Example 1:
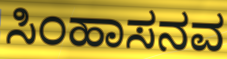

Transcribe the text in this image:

ಸಿಂಹಾಸನವ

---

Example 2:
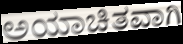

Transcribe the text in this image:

ಅಯಾಚಿತವಾಗಿ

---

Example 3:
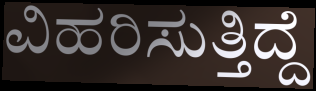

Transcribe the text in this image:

ವಿಹರಿಸುತ್ತಿದ್ದೆ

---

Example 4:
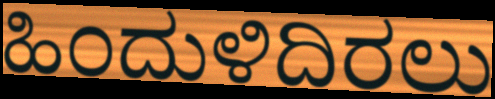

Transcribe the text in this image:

ಹಿಂದುಳಿದಿರಲು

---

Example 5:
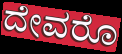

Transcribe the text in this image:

ದೇವರೊ